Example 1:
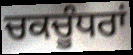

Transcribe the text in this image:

ਚਕਚੂੰਧਰਾਂ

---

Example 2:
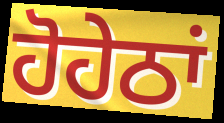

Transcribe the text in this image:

ਹੋਹੇਠਾਂ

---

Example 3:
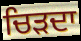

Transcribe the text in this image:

ਚਿੜਦਾ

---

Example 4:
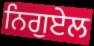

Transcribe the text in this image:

ਨਿਗੁਏਲ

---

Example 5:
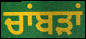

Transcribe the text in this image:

ਚਾਂਬੜਾਂ